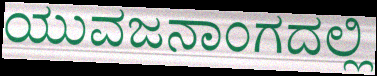
ಯುವಜನಾಂಗದಲ್ಲಿ